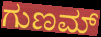
ಗುಣಮ್